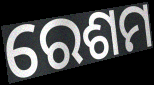
ରେଶମ